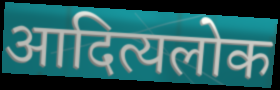
आदित्यलोक